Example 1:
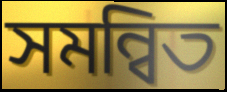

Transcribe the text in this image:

সমন্বিত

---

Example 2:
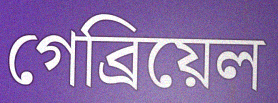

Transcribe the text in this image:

গেব্ৰিয়েল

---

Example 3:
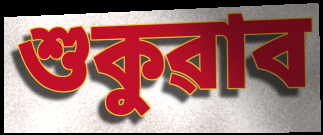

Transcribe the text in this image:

শুকুৱাব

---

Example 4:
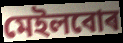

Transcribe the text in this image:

মেইলবোৰ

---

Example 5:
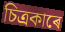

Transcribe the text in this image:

চিত্ৰকাৰে